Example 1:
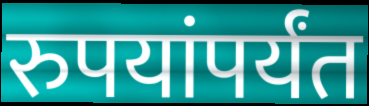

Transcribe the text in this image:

रुपयांपर्यंत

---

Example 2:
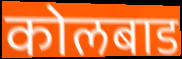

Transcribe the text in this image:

कोलबाड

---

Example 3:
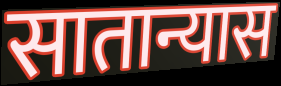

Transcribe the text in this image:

सातान्यास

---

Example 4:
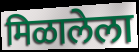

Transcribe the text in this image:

मिळालेला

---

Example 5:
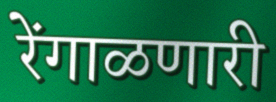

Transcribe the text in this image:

रेंगाळणारी